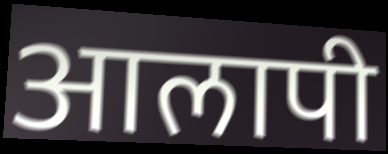
आलापी